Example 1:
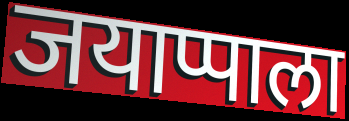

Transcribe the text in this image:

जयाप्पाला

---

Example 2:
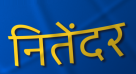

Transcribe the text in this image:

नितेंदर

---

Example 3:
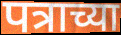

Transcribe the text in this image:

पत्राच्या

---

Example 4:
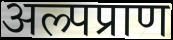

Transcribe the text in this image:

अल्पप्राण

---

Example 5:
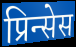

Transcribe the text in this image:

प्रिन्सेस